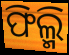
ଫିଲ୍ମି